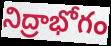
నిద్రాభోగం